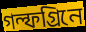
গল্ফগ্রিনে